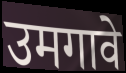
उमगावे